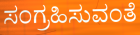
ಸಂಗ್ರಹಿಸುವಂತೆ